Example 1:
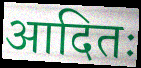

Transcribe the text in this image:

आदितः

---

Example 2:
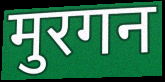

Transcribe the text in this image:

मुरगन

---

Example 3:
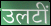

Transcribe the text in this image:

उलटीं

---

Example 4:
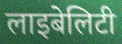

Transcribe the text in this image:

लाइबेलिटी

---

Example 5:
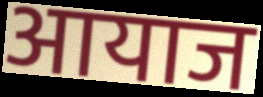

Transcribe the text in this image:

आयाज